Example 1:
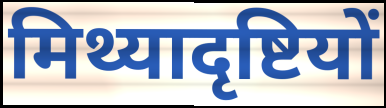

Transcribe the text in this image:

मिथ्यादृष्टियों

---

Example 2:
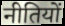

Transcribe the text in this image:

नीतियों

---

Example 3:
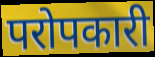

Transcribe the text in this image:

परोपकारी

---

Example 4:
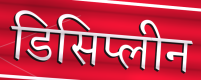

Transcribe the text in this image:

डिसिप्लीन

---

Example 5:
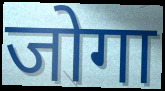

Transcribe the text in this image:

जोगा